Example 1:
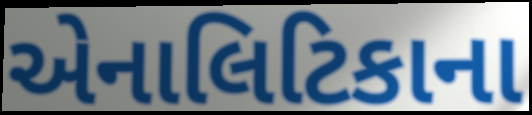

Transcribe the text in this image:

એનાલિટિકાના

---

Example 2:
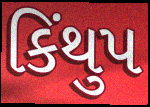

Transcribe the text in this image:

કિંથુપ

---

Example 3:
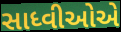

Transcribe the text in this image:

સાધ્વીઓએ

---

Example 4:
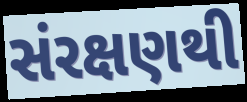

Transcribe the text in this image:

સંરક્ષણથી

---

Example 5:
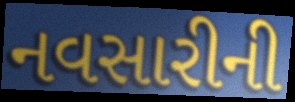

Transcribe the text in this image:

નવસારીની